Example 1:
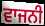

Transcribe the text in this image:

ਵਾਜਨੀ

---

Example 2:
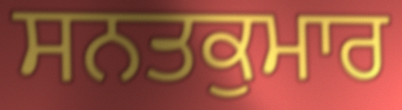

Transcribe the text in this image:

ਸਨਤਕੁਮਾਰ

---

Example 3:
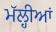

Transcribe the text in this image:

ਮੱਲ੍ਹੀਆਂ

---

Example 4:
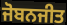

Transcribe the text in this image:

ਜੋਬਨਜੀਤ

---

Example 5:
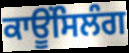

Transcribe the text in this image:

ਕਾਊਂਸਿਲੰਗ